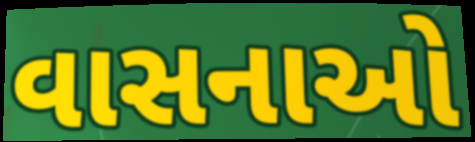
વાસનાઓ